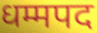
धम्मपद